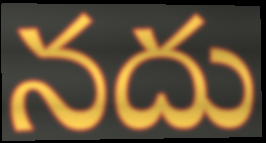
నదు